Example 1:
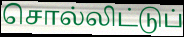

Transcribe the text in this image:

சொல்லிட்டுப்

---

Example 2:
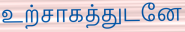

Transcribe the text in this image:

உற்சாகத்துடனே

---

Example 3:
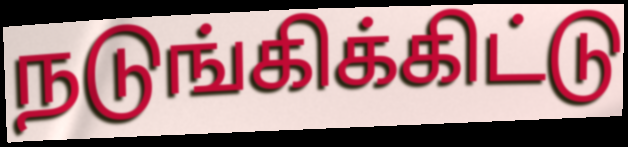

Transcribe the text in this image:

நடுங்கிக்கிட்டு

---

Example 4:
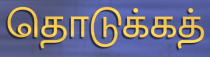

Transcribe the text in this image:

தொடுக்கத்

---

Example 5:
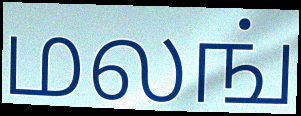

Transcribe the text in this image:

மலங்